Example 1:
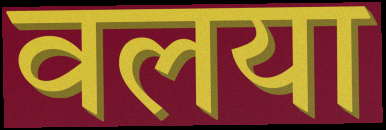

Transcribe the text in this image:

वलया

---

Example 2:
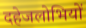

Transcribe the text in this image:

दहेजलोभियों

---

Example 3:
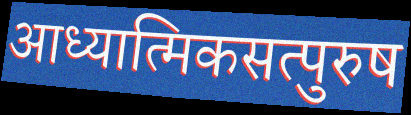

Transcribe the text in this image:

आध्यात्मिकसत्पुरुष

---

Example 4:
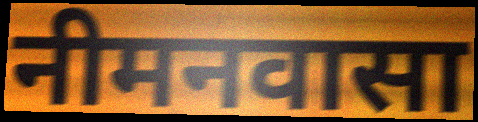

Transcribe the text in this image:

नीमनवासा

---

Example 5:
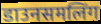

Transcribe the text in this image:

डाउनसमलिंग